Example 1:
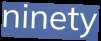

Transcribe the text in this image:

ninety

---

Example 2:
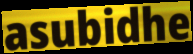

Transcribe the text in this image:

asubidhe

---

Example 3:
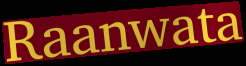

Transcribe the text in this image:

Raanwata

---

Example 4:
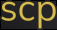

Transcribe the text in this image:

scp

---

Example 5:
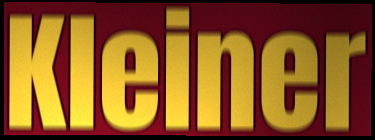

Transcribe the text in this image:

Kleiner